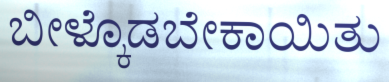
ಬೀಳ್ಕೊಡಬೇಕಾಯಿತು